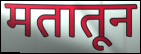
मतातून